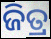
ଜିତ୍ର